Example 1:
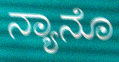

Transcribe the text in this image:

ನ್ಯಾನೊ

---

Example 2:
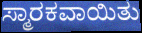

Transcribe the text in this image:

ಸ್ಮಾರಕವಾಯಿತು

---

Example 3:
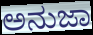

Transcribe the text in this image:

ಅನುಜಾ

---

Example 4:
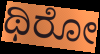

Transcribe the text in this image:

ಥಿರೋ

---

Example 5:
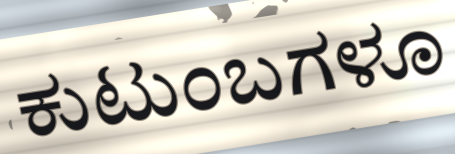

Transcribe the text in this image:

ಕುಟುಂಬಗಳೂ